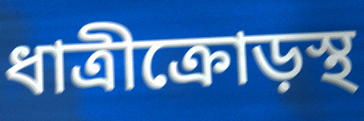
ধাত্রীক্রোড়স্থ